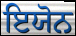
ਇਯੋਨ